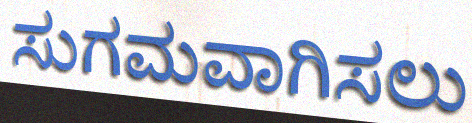
ಸುಗಮವಾಗಿಸಲು